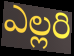
ఎల్లరి